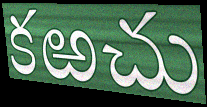
కఱచు